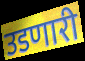
उडणारी